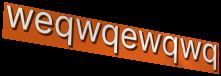
weqwqewqwq